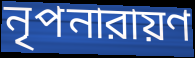
নৃপনারায়ণ